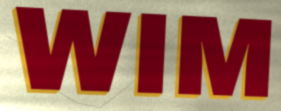
WIM